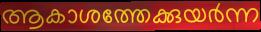
ആകാശത്തേക്കുയർന്ന